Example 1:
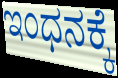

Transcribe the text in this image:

ಇಂಧನಕ್ಕೆ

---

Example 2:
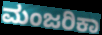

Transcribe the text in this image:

ಮಂಜರಿಕಾ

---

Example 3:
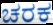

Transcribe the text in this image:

ಚರಕ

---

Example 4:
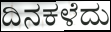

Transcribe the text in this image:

ದಿನಕಳೆದು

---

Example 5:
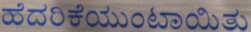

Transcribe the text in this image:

ಹೆದರಿಕೆಯುಂಟಾಯಿತು